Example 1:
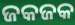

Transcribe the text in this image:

ଜକଜକ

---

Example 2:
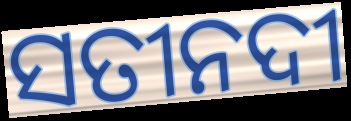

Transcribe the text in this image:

ସତୀନଦୀ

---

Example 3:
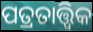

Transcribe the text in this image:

ପତ୍ରତାତ୍ତ୍ୱିକ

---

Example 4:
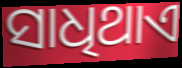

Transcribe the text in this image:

ସାଧିଥାଏ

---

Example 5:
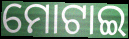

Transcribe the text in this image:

ମୋଟାଇ